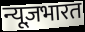
न्यूज़भारत